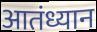
आतंध्यान